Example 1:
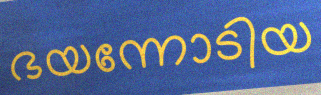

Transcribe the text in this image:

ഭയന്നോടിയ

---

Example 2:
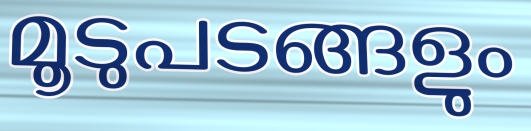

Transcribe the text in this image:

മൂടുപടങ്ങളും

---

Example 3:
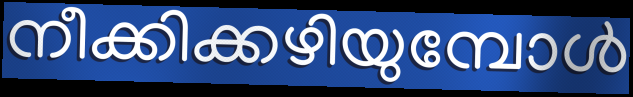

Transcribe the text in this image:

നീക്കിക്കഴിയുമ്പോൾ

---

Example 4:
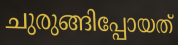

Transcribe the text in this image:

ചുരുങ്ങിപ്പോയത്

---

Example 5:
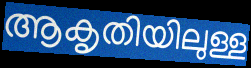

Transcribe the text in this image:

ആകൃതിയിലുള്ള